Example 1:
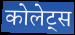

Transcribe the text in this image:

कोलेट्स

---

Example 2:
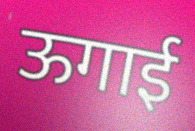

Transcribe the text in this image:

ऊगाई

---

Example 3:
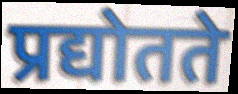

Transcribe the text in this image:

प्रद्योतते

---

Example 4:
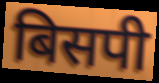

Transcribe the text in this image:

बिसपी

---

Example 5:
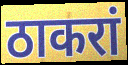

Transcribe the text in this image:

ठाकरां